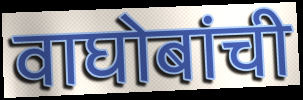
वाघोबांची